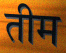
तीम